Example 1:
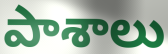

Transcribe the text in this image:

పాశాలు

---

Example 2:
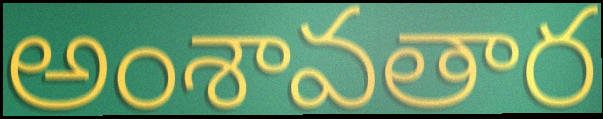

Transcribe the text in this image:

అంశావతార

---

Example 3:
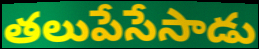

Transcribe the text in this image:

తలుపేసేసాడు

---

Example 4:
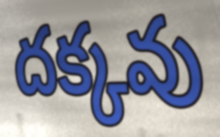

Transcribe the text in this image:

దక్కవు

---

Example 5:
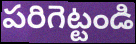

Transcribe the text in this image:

పరిగెట్టండి